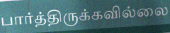
பார்த்திருக்கவில்லை